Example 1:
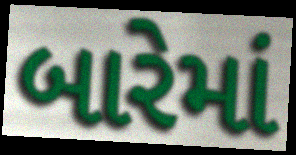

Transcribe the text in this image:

બારેમાં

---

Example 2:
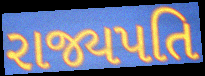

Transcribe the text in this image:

રાજ્યપતિ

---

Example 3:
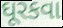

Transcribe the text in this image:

ઘૂરકવા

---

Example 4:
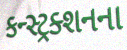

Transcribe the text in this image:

કન્સ્ટ્રક્શનના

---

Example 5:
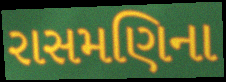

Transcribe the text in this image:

રાસમણિના